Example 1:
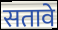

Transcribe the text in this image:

सतावे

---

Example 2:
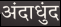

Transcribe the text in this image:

अंदाधुंद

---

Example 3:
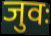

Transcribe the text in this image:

जुवः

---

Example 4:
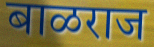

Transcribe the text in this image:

बाळराज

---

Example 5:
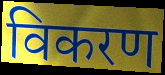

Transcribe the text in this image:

विकरण